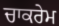
ਚਾਕਰੇਮ